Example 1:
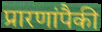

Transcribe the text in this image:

प्रारणांपैकी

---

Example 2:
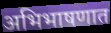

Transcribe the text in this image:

अभिभाषणात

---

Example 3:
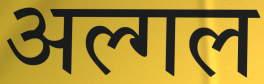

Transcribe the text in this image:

अल्गल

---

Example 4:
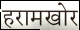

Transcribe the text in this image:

हरामखोर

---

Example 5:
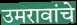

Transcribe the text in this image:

उमरावांचे